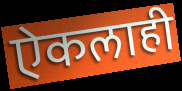
ऐकलाही